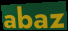
abaz